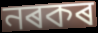
নৰকৰ